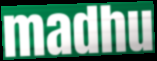
madhu